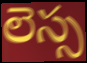
లెస్స